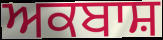
ਅਕਬਾਸ਼